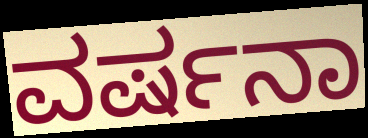
ವರ್ಷನಾ